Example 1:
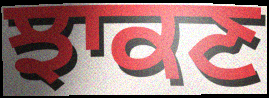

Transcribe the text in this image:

ਝਾਕਣ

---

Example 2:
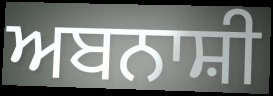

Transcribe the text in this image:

ਅਬਨਾਸ਼ੀ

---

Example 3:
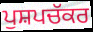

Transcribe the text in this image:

ਪੁਸ਼ਪਚੱਕਰ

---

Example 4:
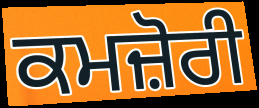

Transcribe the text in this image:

ਕਮਜ਼ੋਰੀ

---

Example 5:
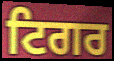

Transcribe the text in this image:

ਟਿਗਰ